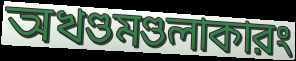
অখণ্ডমণ্ডলাকারং